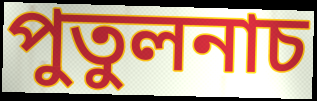
পুতুলনাচ